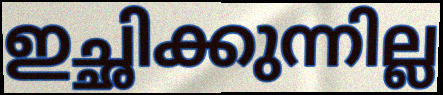
ഇച്ഛിക്കുന്നില്ല